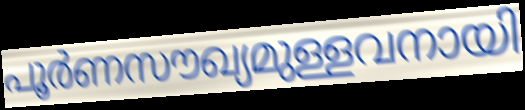
പൂർണസൗഖ്യമുള്ളവനായി